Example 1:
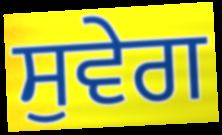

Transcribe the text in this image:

ਸੁਵੇਗ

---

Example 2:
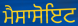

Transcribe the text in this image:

ਮੈਸਾਸੋਇਟ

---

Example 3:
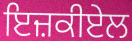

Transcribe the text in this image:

ਇਜ਼ਕੀਏਲ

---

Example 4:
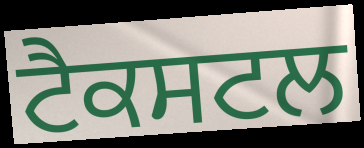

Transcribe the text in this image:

ਟੈਕਸਟਲ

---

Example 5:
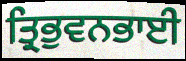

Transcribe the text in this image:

ਤ੍ਰਿਭੁਵਨਭਾਈ